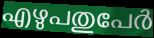
എഴുപതുപേർ